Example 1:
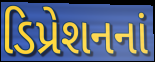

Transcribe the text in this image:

ડિપ્રેશનનાં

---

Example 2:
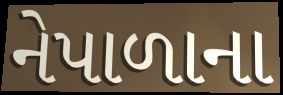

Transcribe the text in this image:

નેપાળાના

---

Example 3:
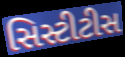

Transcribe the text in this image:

સિસ્ટીટીસ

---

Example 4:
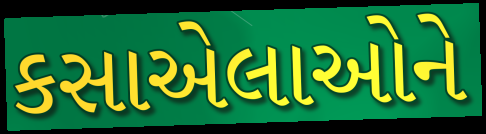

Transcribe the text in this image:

કસાએલાઓને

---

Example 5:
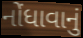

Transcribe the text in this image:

નોંધાવાનું